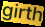
girth